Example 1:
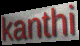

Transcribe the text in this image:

kanthi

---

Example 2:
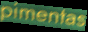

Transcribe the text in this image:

pimentas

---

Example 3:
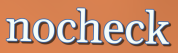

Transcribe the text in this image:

nocheck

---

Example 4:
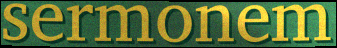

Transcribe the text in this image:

sermonem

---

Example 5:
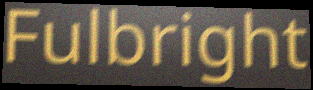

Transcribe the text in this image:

Fulbright